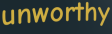
unworthy